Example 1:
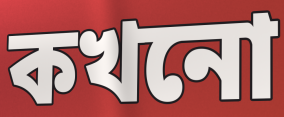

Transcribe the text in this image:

কখনো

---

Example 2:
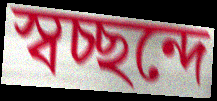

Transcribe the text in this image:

স্বচ্ছন্দে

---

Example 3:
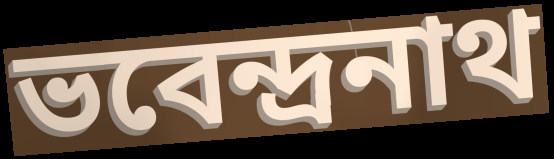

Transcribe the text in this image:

ভবেন্দ্ৰনাথ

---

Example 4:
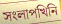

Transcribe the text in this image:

সংলাপখিনি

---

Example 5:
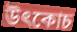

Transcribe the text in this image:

উৎকোচ